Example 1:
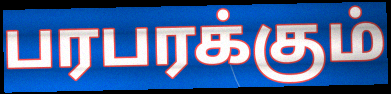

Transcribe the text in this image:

பரபரக்கும்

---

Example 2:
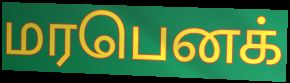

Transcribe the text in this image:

மரபெனக்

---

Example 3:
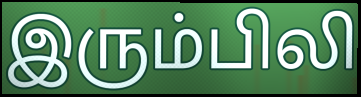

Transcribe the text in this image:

இரும்பிலி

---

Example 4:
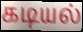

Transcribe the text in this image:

கடியல்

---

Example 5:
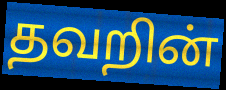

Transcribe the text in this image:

தவறின்